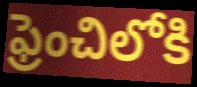
ఫ్రెంచిలోకి